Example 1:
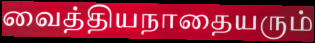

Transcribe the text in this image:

வைத்தியநாதையரும்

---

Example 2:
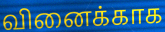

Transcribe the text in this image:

வினைக்காக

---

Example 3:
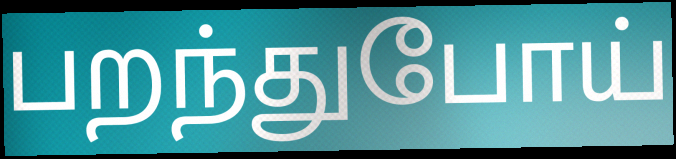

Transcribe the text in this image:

பறந்துபோய்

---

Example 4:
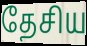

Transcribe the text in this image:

தேசிய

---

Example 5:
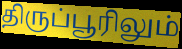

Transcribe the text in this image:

திருப்பூரிலும்